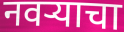
नवऱ्याचा